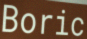
Boric